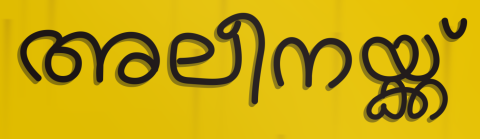
അലീനയ്ക്ക്